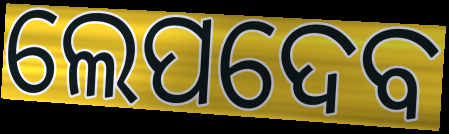
ଲେପଦେବ